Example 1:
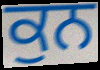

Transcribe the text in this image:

ਕੁਨ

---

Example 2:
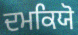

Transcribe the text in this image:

ਦਮਕਿਯੋ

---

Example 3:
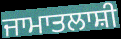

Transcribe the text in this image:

ਜਾਮਾਤਲਾਸ਼ੀ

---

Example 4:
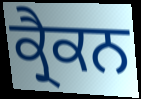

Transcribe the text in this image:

ਕ੍ਰੈਕਨ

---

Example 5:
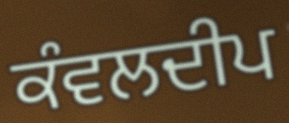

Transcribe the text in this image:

ਕੰਵਲਦੀਪ